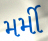
મર્મી